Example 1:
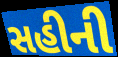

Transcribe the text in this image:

સહીની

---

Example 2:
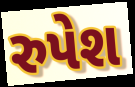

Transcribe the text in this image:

રુપેશ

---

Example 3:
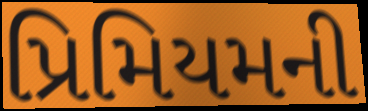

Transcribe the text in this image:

પ્રિમિયમની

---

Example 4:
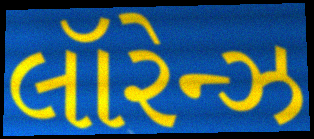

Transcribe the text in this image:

લૉરેન્ઝ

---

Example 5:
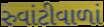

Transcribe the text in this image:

રુવાંટીવાળાં